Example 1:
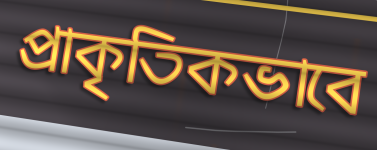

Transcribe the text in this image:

প্রাকৃতিকভাবে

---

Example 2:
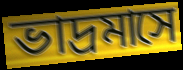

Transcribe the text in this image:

ভাদ্রমাসে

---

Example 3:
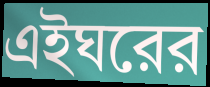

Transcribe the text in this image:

এইঘরের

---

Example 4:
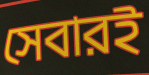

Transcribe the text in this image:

সেবারই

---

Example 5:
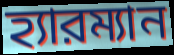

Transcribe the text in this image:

হ্যারম্যান